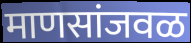
माणसांजवळ